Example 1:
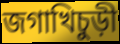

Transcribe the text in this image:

জগাখিচুড়ী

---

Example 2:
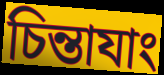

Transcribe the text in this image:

চিন্তাযাং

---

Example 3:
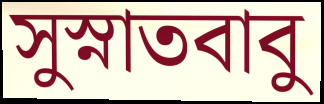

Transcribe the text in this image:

সুস্নাতবাবু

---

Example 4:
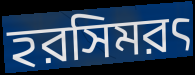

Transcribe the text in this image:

হরসিমরৎ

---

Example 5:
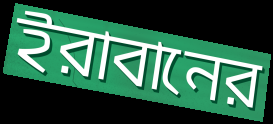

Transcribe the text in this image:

ইরাবানের